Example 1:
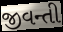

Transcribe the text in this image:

જીવન્તી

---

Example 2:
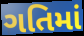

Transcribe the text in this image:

ગતિમાં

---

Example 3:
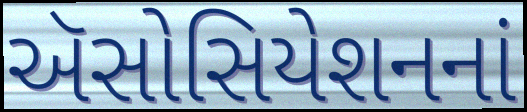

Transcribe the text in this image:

ઍસોસિયેશનનાં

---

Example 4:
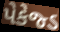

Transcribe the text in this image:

પેકેજ્ડ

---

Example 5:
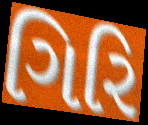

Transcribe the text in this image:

ગિરિ